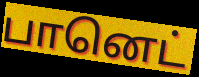
பானெட்